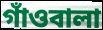
গাঁওবালা